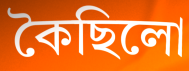
কৈছিলো